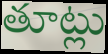
తూట్లు